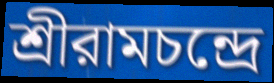
শ্রীরামচন্দ্রে